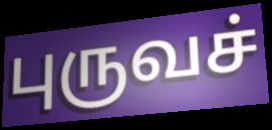
புருவச்